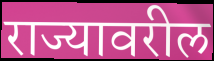
राज्यावरील